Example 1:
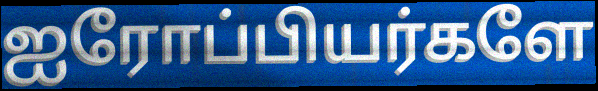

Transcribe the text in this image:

ஐரோப்பியர்களே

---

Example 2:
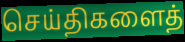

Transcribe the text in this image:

செய்திகளைத்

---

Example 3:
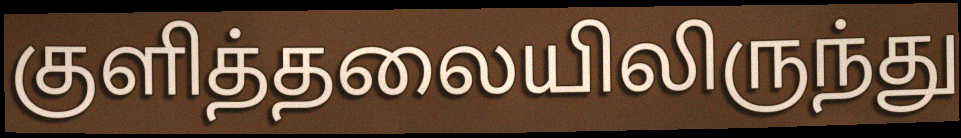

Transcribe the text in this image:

குளித்தலையிலிருந்து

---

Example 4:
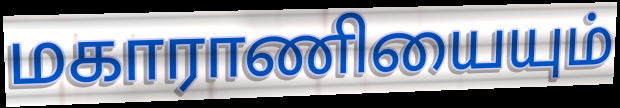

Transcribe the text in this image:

மகாராணியையும்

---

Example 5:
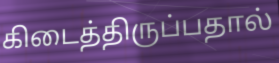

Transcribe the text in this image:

கிடைத்திருப்பதால்